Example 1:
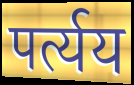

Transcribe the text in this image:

पर्त्यय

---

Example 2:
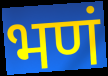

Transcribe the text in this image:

भणं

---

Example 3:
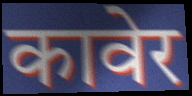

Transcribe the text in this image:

कावेर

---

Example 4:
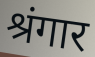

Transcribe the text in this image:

श्रंगार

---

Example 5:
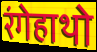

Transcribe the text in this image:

रंगेहाथो